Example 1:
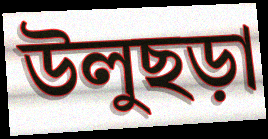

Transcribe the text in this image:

উলুছড়া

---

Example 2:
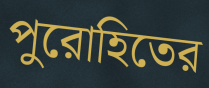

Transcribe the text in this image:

পুরোহিতের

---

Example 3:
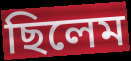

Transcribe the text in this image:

ছিলেম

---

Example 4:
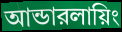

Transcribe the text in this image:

আন্ডারলায়িং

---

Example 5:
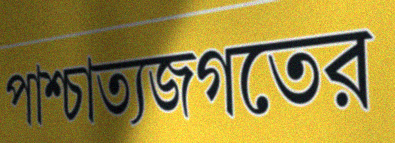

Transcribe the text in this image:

পাশ্চাত্যজগতের